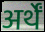
अर्थें